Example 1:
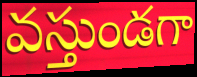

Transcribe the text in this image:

వస్తుండగా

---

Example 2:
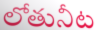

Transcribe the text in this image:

లోతునీట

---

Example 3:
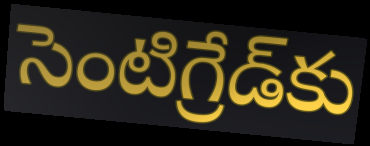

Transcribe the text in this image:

సెంటిగ్రేడ్‌కు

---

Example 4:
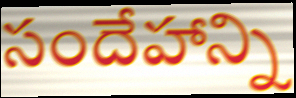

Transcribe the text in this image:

సందేహాన్ని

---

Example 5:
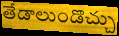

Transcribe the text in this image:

తేడాలుండొచ్చు